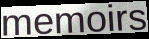
memoirs